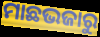
ମାଛଭଜାରୁ